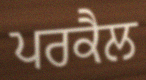
ਪਰਕੈਲ